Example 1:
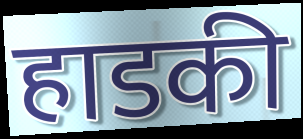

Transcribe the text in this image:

हाडकी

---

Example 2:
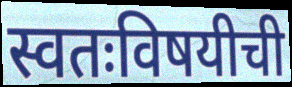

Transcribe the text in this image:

स्वतःविषयीची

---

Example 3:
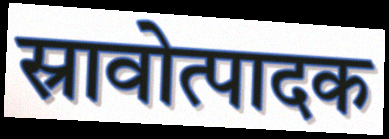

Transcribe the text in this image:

स्रावोत्पादक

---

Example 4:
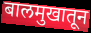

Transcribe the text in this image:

बालमुखातून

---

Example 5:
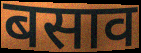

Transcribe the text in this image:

बसाव